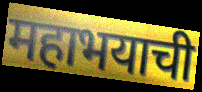
महाभयाची